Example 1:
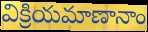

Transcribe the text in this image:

విక్రియమాణానాం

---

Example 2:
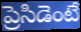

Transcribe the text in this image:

ప్రెసిడెంటే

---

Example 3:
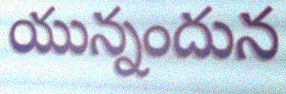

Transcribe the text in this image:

యున్నందున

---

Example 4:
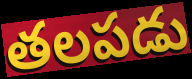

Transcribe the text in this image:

తలపడు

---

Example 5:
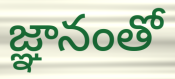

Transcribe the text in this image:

జ్ఞానంతో